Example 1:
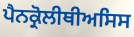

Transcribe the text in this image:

ਪੈਨਕ੍ਰੋਲੀਥੀਅਸਿਸ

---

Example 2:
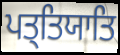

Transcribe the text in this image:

ਪਤ੍ਤਿਯਾਤਿ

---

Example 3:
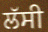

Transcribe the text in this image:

ਲੱਸੀ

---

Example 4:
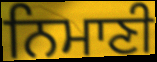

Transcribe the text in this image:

ਨਿਮਾਣੀ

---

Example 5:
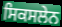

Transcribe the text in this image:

ਸਿਕਸਲੇਨ